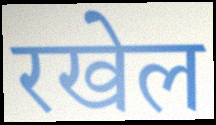
रखेल